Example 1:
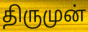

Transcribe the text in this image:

திருமுன்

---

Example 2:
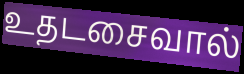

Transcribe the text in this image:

உதடசைவால்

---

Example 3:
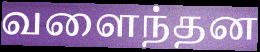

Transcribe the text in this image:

வளைந்தன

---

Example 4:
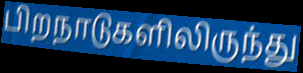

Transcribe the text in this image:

பிறநாடுகளிலிருந்து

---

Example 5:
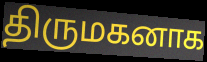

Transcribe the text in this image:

திருமகனாக